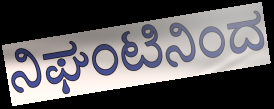
ನಿಘಂಟಿನಿಂದ